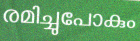
രമിച്ചുപോകും